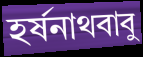
হর্ষনাথবাবু